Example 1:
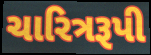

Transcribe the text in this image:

ચારિત્રરૂપી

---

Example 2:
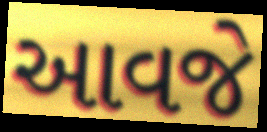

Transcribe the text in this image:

આવજે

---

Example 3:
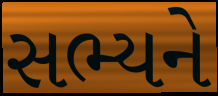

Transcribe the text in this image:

સભ્યને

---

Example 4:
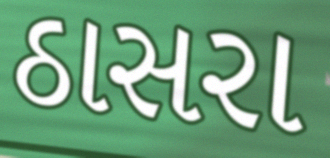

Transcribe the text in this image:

ઠાસરા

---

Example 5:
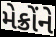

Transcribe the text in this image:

મેક્રોંને